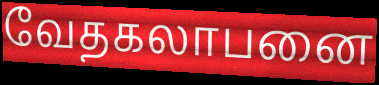
வேதகலாபனை